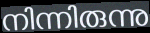
നിന്നിരുന്നു